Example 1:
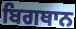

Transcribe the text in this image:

ਬਿਗਥਾਨ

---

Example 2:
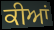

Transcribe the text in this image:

ਕੀਆਂ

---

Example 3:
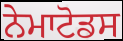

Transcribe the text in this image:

ਨੇਮਾਟੋਡਸ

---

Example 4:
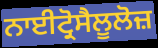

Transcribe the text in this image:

ਨਾਈਟ੍ਰੋਸੈਲੂਲੋਜ਼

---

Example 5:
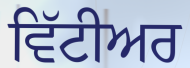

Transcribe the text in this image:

ਵਿੱਟੀਅਰ